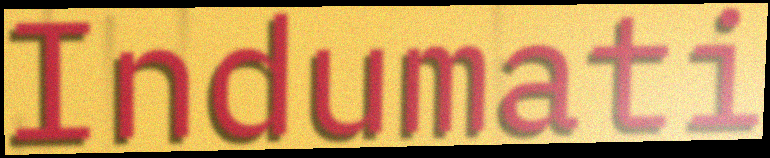
Indumati